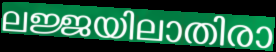
ലജ്ജയിലാതിരാ